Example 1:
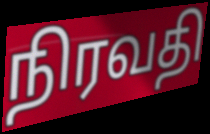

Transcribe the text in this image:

நிரவதி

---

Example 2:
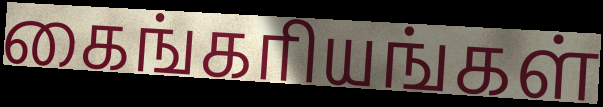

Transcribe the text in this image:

கைங்கரியங்கள்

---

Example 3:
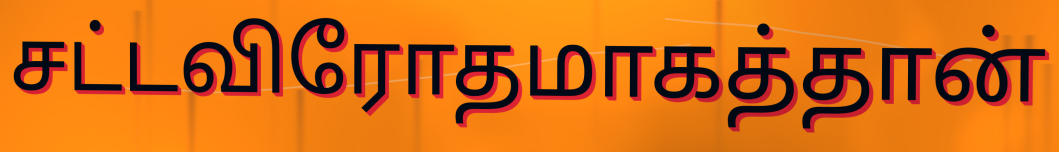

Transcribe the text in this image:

சட்டவிரோதமாகத்தான்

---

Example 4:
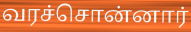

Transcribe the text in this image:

வரச்சொன்னார்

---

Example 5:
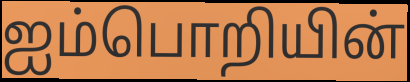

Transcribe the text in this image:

ஐம்பொறியின்